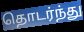
தொடர்ந்து